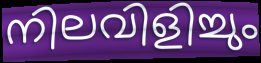
നിലവിളിച്ചും